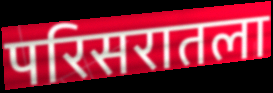
परिसरातला